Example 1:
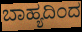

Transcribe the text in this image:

ಬಾಹ್ಯದಿಂದ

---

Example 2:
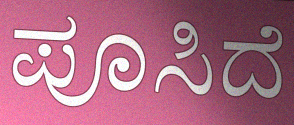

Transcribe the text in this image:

ಪೂಸಿದೆ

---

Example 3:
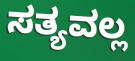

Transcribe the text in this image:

ಸತ್ಯವಲ್ಲ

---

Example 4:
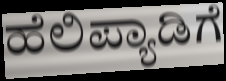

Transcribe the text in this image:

ಹೆಲಿಪ್ಯಾಡಿಗೆ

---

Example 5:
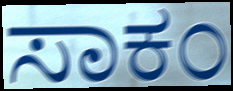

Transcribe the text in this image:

ಸಾಕಂ